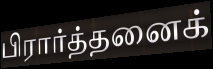
பிரார்த்தனைக்